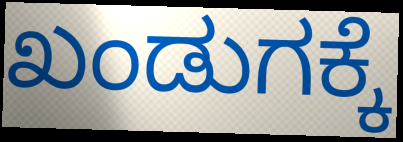
ಖಂಡುಗಕ್ಕೆ